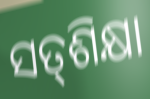
ସତ୍‌ଶିକ୍ଷା